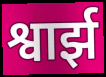
श्वार्झ